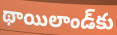
థాయిలాండ్‌కు